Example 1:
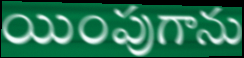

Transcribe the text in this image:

యింపుగాను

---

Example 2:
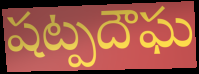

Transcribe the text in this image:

షట్పదౌఘ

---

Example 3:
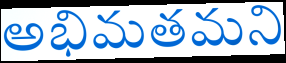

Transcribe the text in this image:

అభిమతమని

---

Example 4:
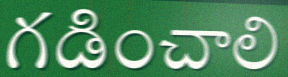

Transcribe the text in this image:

గడించాలి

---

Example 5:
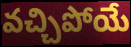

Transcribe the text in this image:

వచ్చిపోయే